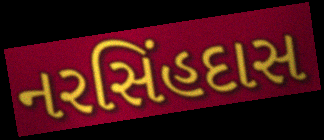
નરસિંહદાસ